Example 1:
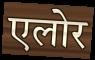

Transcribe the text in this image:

एलोर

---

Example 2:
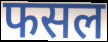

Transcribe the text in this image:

फसल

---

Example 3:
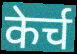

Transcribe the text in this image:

केर्च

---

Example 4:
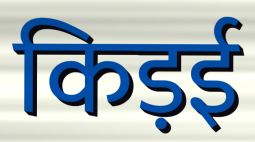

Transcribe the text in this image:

किड़ई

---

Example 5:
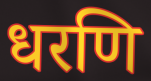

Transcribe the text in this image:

धरणि